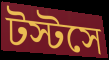
টস্টসে